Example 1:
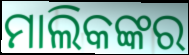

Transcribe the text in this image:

ମାଲିକଙ୍କର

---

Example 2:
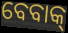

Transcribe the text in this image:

ବେବାକ୍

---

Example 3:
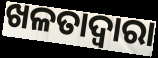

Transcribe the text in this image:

ଖଳତାଦ୍ଵାରା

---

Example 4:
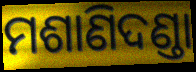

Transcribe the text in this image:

ମଶାଣିଦଣ୍ଡା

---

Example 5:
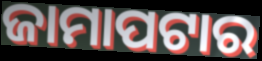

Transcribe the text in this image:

ଜାମାପଟାର